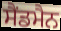
ਸੈਂਡਮੈਨ